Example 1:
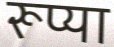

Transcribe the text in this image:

रूप्या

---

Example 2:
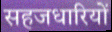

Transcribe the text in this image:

सहजधारियों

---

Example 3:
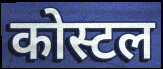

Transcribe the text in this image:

कोस्टल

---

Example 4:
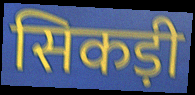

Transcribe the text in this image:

सिकड़ी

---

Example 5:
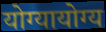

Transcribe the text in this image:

योग्यायोग्य